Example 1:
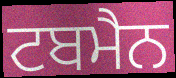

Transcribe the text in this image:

ਟਬਮੈਨ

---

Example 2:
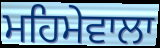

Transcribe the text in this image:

ਮਹਿਮੇਵਾਲਾ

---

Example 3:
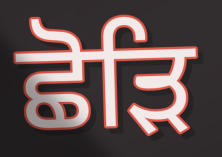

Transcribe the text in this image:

ਛੋੜਿ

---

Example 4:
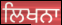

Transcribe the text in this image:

ਲਿਖਨਾ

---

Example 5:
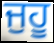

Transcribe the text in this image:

ਜੁਹੂ